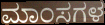
ಮಾಂಸಗಳ